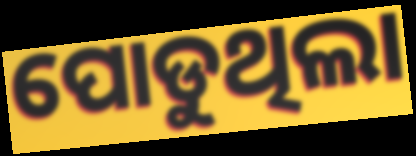
ପୋଡୁଥିଲା